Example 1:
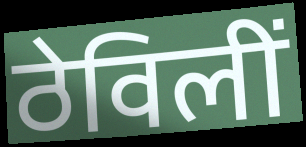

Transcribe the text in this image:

ठेविलीं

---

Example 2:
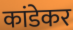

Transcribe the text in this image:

कांडेकर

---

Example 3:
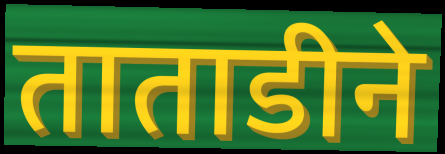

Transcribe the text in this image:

ताताडीने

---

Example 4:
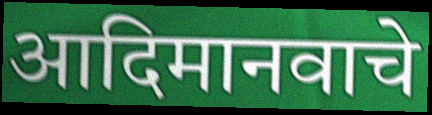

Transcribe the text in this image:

आदिमानवाचे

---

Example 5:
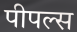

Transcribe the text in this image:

पीपल्स